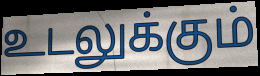
உடலுக்கும்